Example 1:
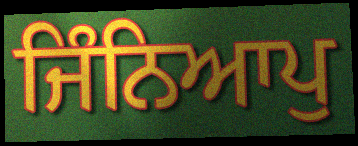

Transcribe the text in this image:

ਜਿੰਨਿਆਪੁ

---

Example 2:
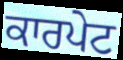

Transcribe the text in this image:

ਕਾਰਪੇਟ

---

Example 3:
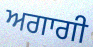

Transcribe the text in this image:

ਅਗਾਗੀ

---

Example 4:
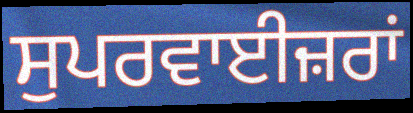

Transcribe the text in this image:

ਸੁਪਰਵਾਈਜ਼ਰਾਂ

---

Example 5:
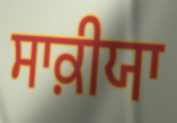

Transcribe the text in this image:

ਸਾਕ਼ੀਯਾ